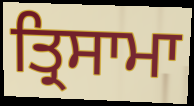
ਤ੍ਰਿਸਾਮਾ